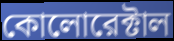
কোলোরেক্টাল